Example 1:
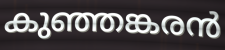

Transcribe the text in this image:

കുഞ്ഞങ്കരൻ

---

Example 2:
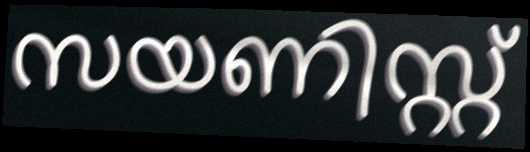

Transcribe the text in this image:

സയണിസ്റ്റ്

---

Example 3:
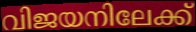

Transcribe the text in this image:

വിജയനിലേക്ക്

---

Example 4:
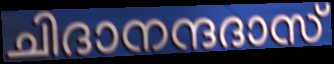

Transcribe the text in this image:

ചിദാനന്ദദാസ്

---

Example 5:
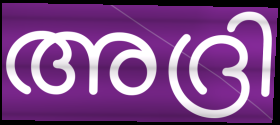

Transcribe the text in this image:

അദ്രി